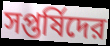
সপ্তর্ষিদের